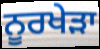
ਨੂਰਖੇੜਾ